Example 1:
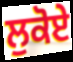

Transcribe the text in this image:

ਲੁਕੋਏ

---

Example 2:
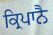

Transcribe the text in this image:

ਕ੍ਰਿਪਾਨੈ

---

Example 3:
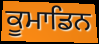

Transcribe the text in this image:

ਕੂਮਾਡਿਨ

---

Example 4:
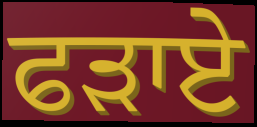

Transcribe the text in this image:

ਫੜਾਏ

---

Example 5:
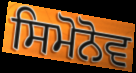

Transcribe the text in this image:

ਸਿਮੋਨੋਵ